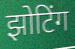
झोटिंग